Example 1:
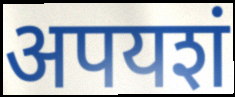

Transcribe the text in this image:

अपयशं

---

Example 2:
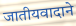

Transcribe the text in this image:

जातीयवादाने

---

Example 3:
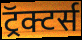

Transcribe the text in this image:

ट्रॅक्टर्स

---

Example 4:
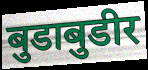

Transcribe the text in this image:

बुडाबुडीर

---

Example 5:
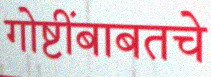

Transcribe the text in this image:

गोष्टींबाबतचे